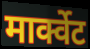
मार्क्वेट